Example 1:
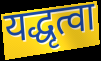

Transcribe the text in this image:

यद्धृत्वा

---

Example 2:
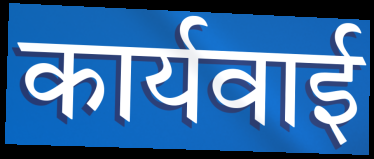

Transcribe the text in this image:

कार्यवाई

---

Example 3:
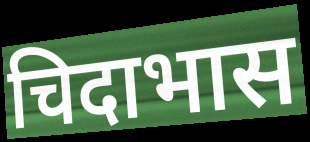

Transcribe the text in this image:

चिदाभास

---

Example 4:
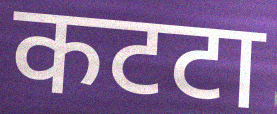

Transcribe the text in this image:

कटटा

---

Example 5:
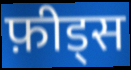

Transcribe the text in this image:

फ़ीड्स